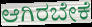
ಆಗಿರಬೇಕೆ